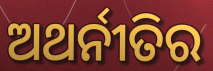
ଅଥର୍ନୀତିର